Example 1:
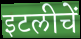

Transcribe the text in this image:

इटलीचें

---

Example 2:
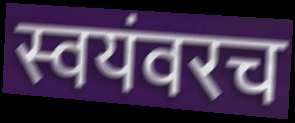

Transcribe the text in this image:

स्वयंवरच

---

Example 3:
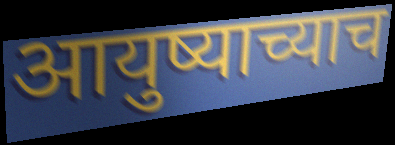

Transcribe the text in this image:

आयुष्याच्याच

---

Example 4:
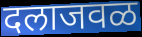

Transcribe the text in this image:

दलाजवळ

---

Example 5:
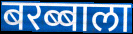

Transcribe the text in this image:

बरब्बाला